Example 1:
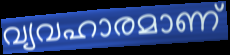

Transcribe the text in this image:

വ്യവഹാരമാണ്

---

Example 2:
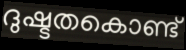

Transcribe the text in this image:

ദുഷ്ടതകൊണ്ട്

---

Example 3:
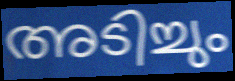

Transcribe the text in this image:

അടിച്ചും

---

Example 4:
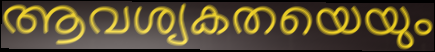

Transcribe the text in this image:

ആവശ്യകതയെയും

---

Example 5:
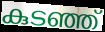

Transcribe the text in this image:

കുടഞ്ഞ്